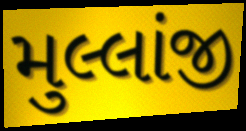
મુલ્લાંજી